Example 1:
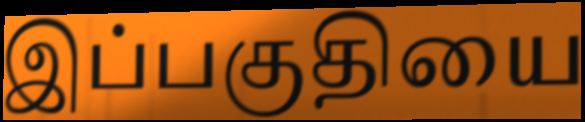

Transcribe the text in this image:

இப்பகுதியை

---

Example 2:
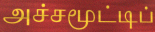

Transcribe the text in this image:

அச்சமூட்டிப்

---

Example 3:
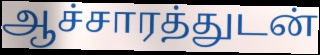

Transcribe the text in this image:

ஆச்சாரத்துடன்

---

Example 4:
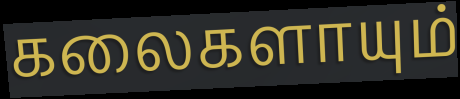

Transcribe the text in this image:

கலைகளாயும்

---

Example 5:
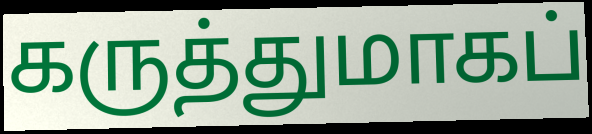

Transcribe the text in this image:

கருத்துமாகப்